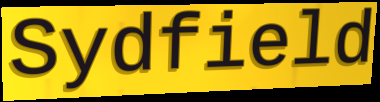
Sydfield